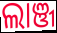
ଲାଞ୍ଜ